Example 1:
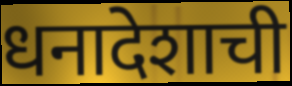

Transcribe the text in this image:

धनादेशाची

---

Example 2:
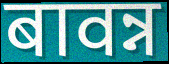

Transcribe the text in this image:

बावन्न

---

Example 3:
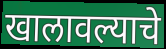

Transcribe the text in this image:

खालावल्याचे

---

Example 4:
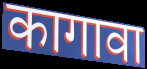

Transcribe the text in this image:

कागावा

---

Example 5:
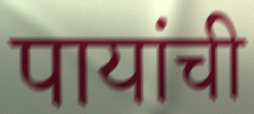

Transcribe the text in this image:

पायांची